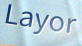
Layor